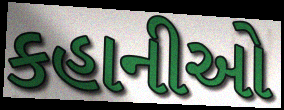
કહાનીઓ